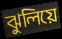
ঝুলিয়ে